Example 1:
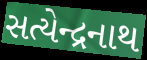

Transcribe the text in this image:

સત્યેન્દ્રનાથ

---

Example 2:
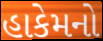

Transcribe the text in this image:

હાકેમનો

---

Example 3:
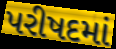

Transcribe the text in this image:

પરીષદમાં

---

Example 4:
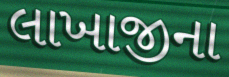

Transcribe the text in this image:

લાખાજીના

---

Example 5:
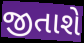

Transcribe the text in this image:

જીતાશે